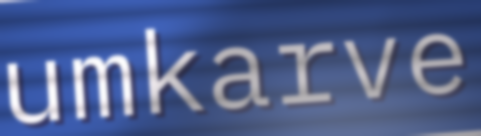
umkarve